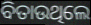
ବିତାଉଥିଲେ